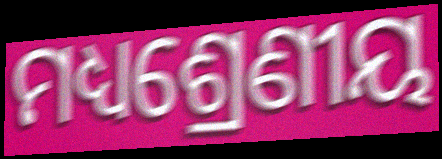
ମଧ୍ୟଶ୍ରେଣୀୟ